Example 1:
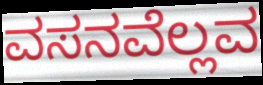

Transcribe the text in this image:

ವಸನವೆಲ್ಲವ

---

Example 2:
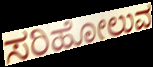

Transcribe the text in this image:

ಸರಿಹೋಲುವ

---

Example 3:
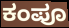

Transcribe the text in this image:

ಕಂಪೂ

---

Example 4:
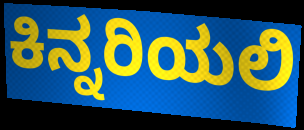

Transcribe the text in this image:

ಕಿನ್ನರಿಯಲಿ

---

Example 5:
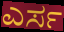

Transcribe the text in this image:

ಎರ್ಸ